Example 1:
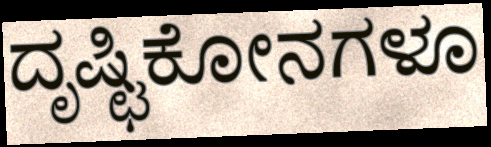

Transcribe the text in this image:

ದೃಷ್ಟಿಕೋನಗಳೂ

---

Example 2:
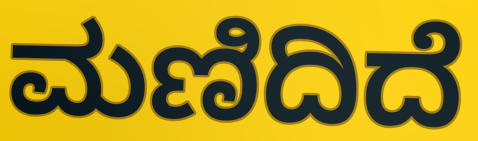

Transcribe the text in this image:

ಮಣಿದಿದೆ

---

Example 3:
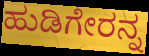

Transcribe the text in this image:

ಹುಡಿಗೇರನ್ನ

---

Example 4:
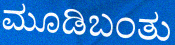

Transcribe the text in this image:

ಮೂಡಿಬಂತು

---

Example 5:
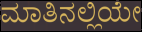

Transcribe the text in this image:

ಮಾತಿನಲ್ಲಿಯೇ